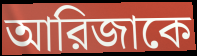
আরিজাকে